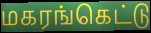
மகரங்கெட்டு